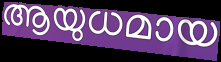
ആയുധമായ